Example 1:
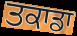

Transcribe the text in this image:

ਤਕਾਡਾ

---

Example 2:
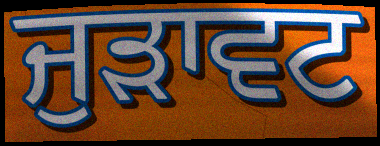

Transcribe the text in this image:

ਜੁੜਾਵਟ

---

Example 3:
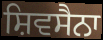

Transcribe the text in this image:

ਸ਼ਿਵਸੈਨਾ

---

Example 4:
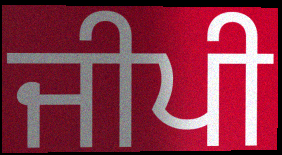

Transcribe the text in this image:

ਜੀਪੀ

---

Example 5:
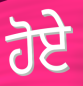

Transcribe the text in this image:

ਹੋਏੇ